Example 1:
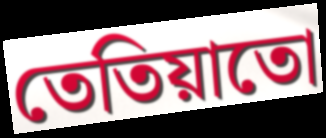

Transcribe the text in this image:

তেতিয়াতো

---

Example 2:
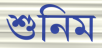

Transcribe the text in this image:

শুনিম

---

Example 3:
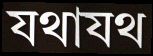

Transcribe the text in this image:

যথাযথ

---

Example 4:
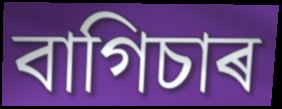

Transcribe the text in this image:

বাগিচাৰ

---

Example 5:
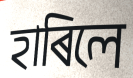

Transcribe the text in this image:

হাৰিলে